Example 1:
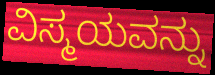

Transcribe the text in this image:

ವಿಸ್ಮಯವನ್ನು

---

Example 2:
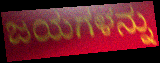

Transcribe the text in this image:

ಜಯಗಳನ್ನು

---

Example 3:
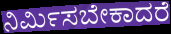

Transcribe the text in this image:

ನಿರ್ಮಿಸಬೇಕಾದರೆ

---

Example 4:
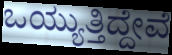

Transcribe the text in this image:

ಒಯ್ಯುತ್ತಿದ್ದೇವೆ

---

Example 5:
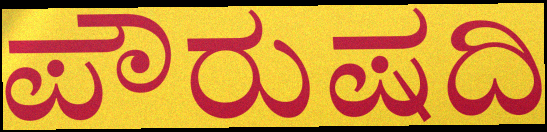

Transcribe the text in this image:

ಪೌರುಷದಿ